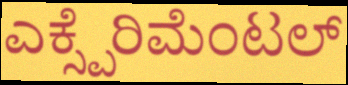
ಎಕ್ಸ್ಪೆರಿಮೆಂಟಲ್